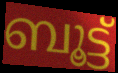
ബൂട്ട്